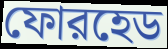
ফোরহেড